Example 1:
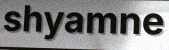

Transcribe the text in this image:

shyamne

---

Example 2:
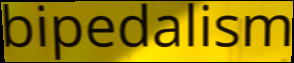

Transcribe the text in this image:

bipedalism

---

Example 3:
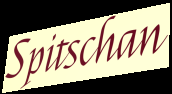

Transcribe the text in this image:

Spitschan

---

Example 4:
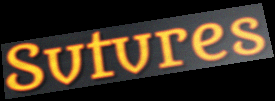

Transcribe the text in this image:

Sutures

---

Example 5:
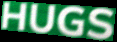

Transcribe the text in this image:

HUGS